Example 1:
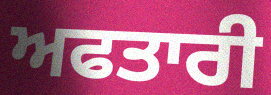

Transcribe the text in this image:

ਅਫਤਾਰੀ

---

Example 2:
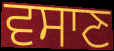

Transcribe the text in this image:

ਵਸਾਣ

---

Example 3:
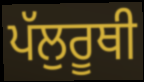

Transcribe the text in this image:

ਪੱਲੁਰੂਥੀ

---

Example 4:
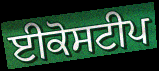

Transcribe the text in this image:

ਈਕੋਸਟੀਪ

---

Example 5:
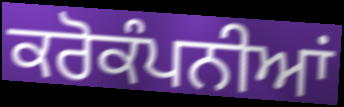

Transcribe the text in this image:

ਕਰੋਕੰਪਨੀਆਂ